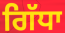
ਗਿੱਧਾ